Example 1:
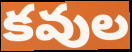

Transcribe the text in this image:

కవుల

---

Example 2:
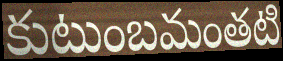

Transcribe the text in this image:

కుటుంబమంతటి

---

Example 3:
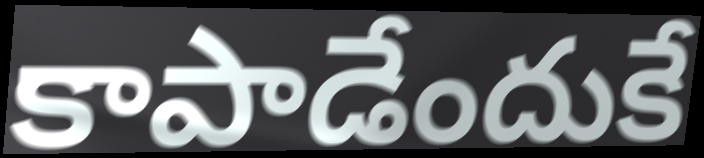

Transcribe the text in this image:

కాపాడేందుకే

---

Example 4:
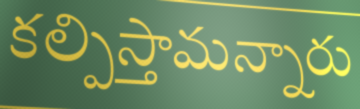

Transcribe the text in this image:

కల్పిస్తామన్నారు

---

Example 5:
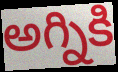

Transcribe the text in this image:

అగ్నికి